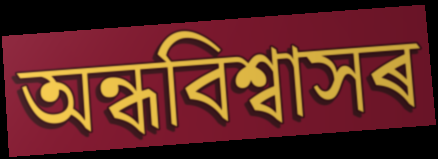
অন্ধবিশ্বাসৰ